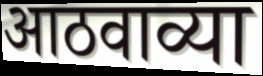
आठवाव्या